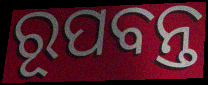
ରୂପବନ୍ତ